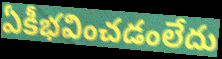
ఏకీభవించడంలేదు